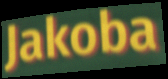
Jakoba